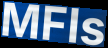
MFIs